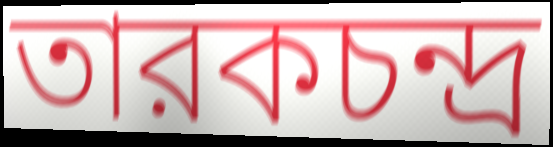
তারকচন্দ্র